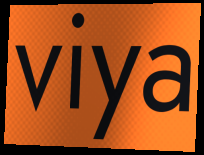
viya